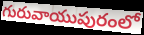
గురువాయుపురంలో